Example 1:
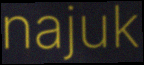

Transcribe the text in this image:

najuk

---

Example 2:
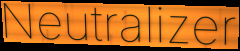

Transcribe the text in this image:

Neutralizer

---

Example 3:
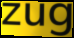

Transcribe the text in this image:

zug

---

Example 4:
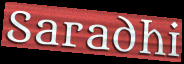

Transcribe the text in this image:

Saradhi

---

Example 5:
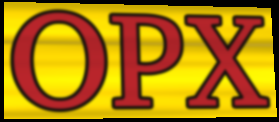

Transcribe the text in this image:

OPX